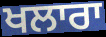
ਖਲਾਰਾ